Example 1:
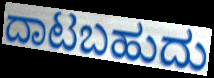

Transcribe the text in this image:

ದಾಟಬಹುದು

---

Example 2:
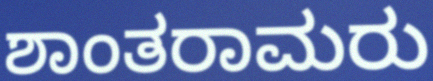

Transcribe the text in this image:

ಶಾಂತರಾಮರು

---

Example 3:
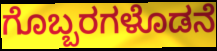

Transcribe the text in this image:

ಗೊಬ್ಬರಗಳೊಡನೆ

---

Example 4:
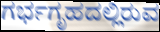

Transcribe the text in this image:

ಗರ್ಭಗೃಹದಲ್ಲಿರುವ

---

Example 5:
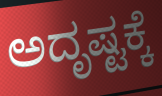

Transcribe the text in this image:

ಅದೃಷ್ಟಕ್ಕೆ